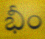
భీం